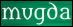
mugda